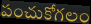
పంచుకోగలం